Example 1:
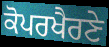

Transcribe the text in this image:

ਕੋਪਰਖੈਰਣੇ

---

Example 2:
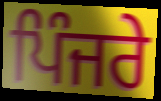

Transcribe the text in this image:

ਪਿੰਜਰੇ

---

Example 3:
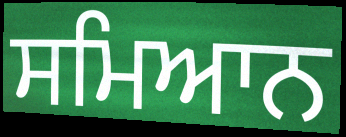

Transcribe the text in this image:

ਸਮਿਆਨ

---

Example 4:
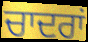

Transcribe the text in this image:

ਚਾਦਰਾਂ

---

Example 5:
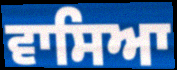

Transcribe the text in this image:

ਵਾਸਿਆ